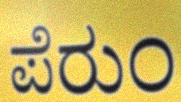
ಪೆರುಂ